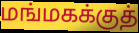
மங்மகக்குத்